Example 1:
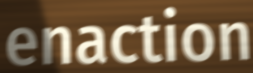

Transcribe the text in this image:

enaction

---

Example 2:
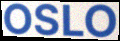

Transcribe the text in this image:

OSLO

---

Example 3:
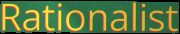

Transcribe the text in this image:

Rationalist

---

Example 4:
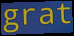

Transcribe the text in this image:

grat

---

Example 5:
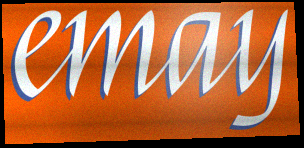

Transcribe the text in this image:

emay